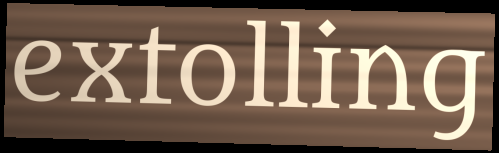
extolling